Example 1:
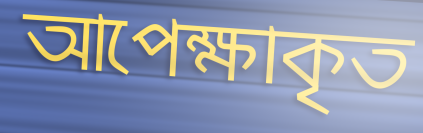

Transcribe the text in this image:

আপেক্ষাকৃত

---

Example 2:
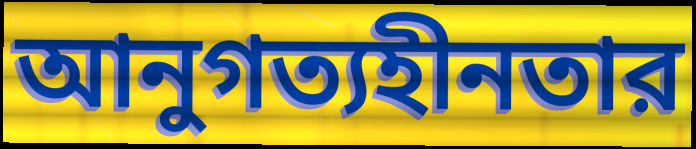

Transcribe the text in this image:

আনুগত্যহীনতার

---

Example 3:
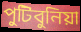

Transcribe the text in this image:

পুটিবুনিয়া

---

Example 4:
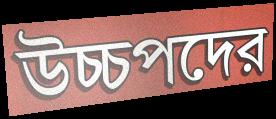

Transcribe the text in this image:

উচ্চপদের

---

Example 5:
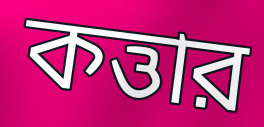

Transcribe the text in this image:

কত্তার